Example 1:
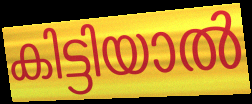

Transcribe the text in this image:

കിട്ടിയാൽ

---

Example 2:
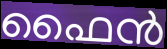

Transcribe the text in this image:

ഫൈൻ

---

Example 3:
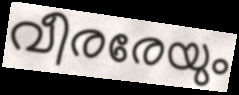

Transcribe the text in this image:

വീരരേയും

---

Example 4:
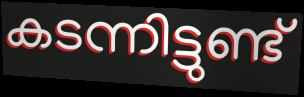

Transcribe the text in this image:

കടന്നിട്ടുണ്ട്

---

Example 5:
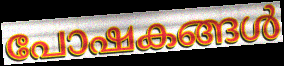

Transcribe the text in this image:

പോഷകങ്ങൾ